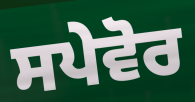
ਸਪੇਵੋਰ